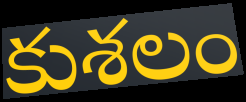
కుశలం